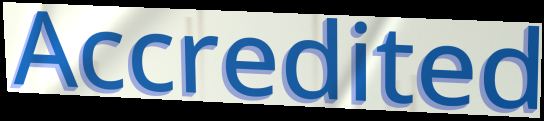
Accredited